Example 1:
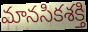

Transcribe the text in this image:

మానసికశక్తి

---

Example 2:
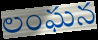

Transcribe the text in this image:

లంఘన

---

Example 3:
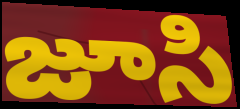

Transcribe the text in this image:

జూసి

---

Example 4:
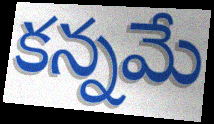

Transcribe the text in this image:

కన్నమే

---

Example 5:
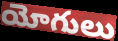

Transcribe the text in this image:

యోగులు